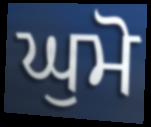
ਘੁਮੋ